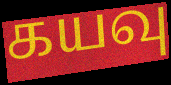
கயவு